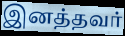
இனத்தவர்